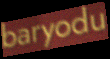
baryodu